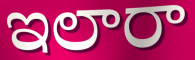
ఇలారా